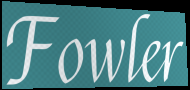
Fowler